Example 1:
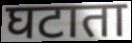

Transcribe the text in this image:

घटाता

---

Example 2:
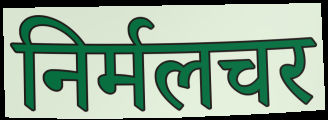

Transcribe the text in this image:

निर्मलचर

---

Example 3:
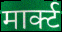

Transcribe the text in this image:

मार्क्ट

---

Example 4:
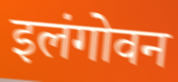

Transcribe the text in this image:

इलंगोवन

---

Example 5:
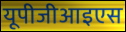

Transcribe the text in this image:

यूपीजीआइएस